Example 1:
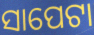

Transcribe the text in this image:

ସାପେଟା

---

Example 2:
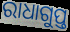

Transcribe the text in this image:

ରାଧାଗୁପ୍ତ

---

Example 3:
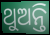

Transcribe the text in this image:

ଥୁଅନ୍ତି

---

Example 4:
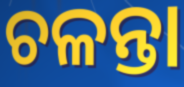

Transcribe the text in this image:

ଚଳନ୍ତା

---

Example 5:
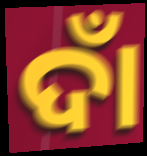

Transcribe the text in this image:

ଦାଁ